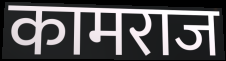
कामराज